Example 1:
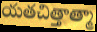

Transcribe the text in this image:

యతచిత్తాత్మా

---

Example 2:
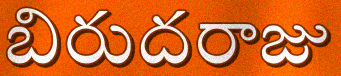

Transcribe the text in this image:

బిరుదరాజు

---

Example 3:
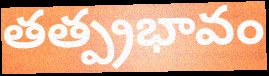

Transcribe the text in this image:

తత్ప్రభావం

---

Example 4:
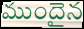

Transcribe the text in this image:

ముందైన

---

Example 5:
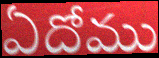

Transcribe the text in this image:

ఏదోము